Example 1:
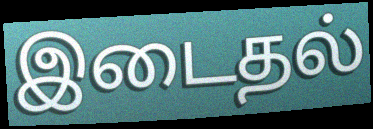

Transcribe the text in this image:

இடைதல்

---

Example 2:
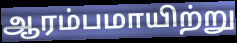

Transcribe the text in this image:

ஆரம்பமாயிற்று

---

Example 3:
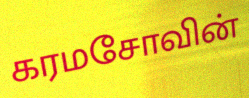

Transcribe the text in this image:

கரமசோவின்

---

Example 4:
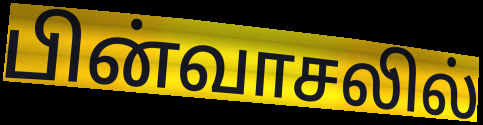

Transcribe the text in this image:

பின்வாசலில்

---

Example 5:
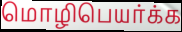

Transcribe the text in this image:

மொழிபெயர்க்க